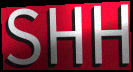
SHH